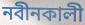
নবীনকালী